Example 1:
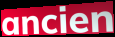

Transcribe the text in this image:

ancien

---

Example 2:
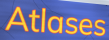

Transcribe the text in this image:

Atlases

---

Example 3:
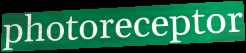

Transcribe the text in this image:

photoreceptor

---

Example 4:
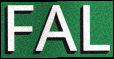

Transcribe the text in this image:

FAL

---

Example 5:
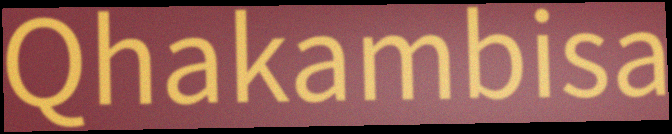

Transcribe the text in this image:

Qhakambisa